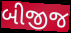
બીજીજ